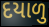
દયાળુ